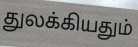
துலக்கியதும்